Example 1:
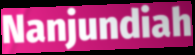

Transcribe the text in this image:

Nanjundiah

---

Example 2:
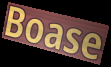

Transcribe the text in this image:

Boase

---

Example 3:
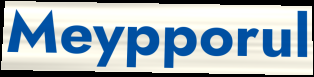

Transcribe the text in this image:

Meypporul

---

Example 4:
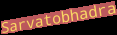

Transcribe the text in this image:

Sarvatobhadra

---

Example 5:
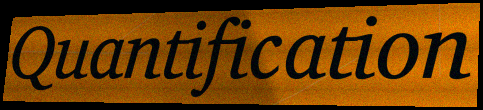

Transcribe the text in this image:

Quantification